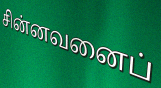
சின்னவனைப்